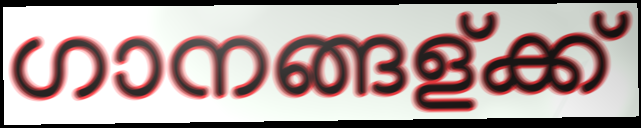
ഗാനങ്ങള്ക്ക്